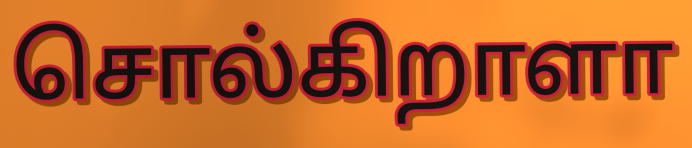
சொல்கிறாளா